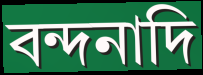
বন্দনাদি